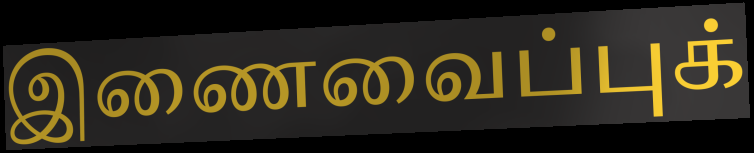
இணைவைப்புக்